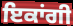
ਇਕਾਂਗੀ